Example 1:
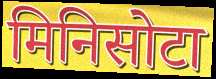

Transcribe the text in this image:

मिनिसोटा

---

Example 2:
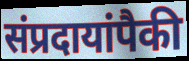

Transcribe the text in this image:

संप्रदायांपैकी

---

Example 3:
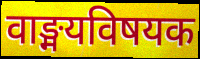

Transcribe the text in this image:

वाङ्मयविषयक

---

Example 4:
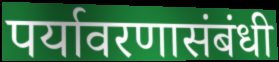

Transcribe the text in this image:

पर्यावरणासंबंधी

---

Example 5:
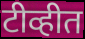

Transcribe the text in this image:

टीव्हीत